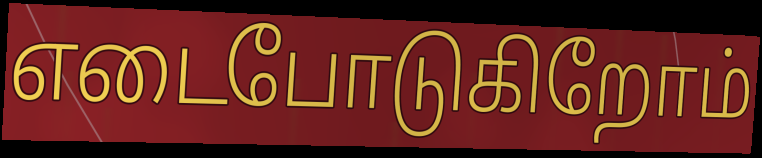
எடைபோடுகிறோம்